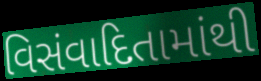
વિસંવાદિતામાંથી